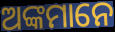
ଅଙ୍କମାନେ